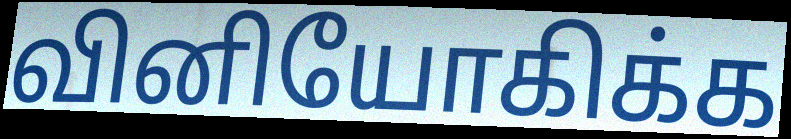
வினியோகிக்க